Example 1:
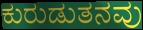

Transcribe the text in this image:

ಕುರುಡುತನವು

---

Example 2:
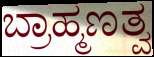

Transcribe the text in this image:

ಬ್ರಾಹ್ಮಣತ್ವ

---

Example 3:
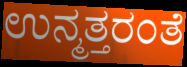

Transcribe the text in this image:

ಉನ್ಮತ್ತರಂತೆ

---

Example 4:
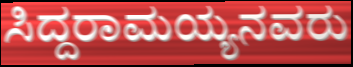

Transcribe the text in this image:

ಸಿದ್ದರಾಮಯ್ಯನವರು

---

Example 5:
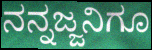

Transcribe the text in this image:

ನನ್ನಜ್ಜನಿಗೂ